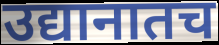
उद्यानातच